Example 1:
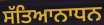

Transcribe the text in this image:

ਸੱਤਿਆਨਾਧਨ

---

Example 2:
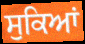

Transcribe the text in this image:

ਸੁਕਿਆਂ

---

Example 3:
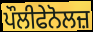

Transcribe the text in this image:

ਪੌਲੀਫੇਨੋਲਜ਼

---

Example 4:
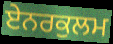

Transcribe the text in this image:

ਏਨਰਕੁਲਮ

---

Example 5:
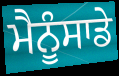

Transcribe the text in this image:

ਮੈਨੂੰਸਾਡੇ